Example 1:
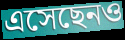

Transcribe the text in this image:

এসেছেনও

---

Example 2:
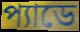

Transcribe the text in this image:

প্যাডে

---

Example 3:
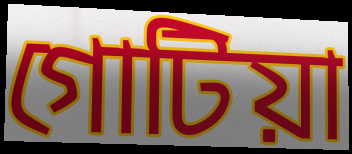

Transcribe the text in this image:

গোটিয়া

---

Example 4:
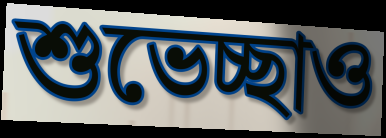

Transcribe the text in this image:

শুভেচ্ছাও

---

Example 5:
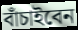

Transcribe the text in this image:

বাঁচাইবেন